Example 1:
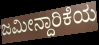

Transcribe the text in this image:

ಜಮೀನ್ದಾರಿಕೆಯ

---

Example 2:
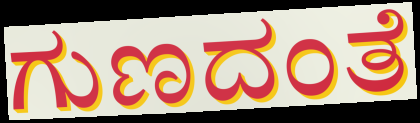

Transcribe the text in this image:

ಗುಣದಂತೆ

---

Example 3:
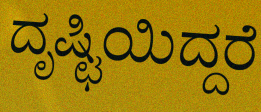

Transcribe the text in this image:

ದೃಷ್ಟಿಯಿದ್ದರೆ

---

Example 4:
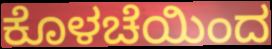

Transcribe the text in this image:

ಕೊಳಚೆಯಿಂದ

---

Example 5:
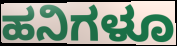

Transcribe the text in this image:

ಹನಿಗಳೂ